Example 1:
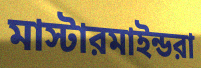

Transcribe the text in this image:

মাস্টারমাইন্ডরা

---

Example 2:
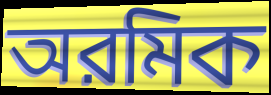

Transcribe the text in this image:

অরমিক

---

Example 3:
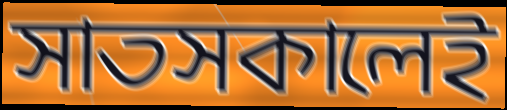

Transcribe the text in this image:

সাতসকালেই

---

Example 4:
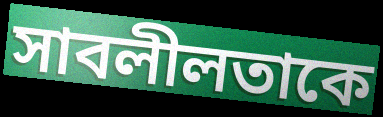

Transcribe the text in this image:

সাবলীলতাকে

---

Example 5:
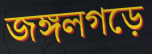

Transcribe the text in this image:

জঙ্গলগড়ে